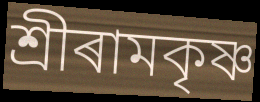
শ্ৰীৰামকৃষ্ণ